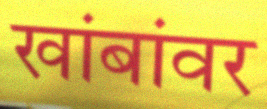
खांबांवर